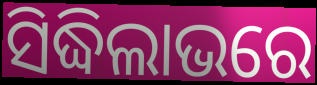
ସିଦ୍ଧିଲାଭରେ